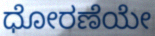
ಧೋರಣೆಯೇ